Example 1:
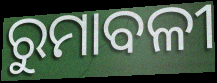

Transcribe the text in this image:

ରୁମାବଳୀ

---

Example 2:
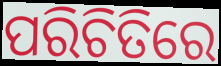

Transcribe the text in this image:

ପରିଚିତିରେ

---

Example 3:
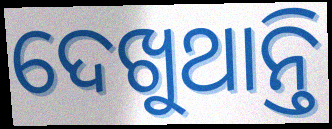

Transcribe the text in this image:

ଦେଖୁଥାନ୍ତି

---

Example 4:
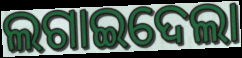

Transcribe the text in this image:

ଲଗାଇଦେଲା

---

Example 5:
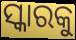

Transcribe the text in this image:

ସ୍କାରକୁ